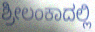
ಶ್ರೀಲಂಕಾದಲ್ಲಿ